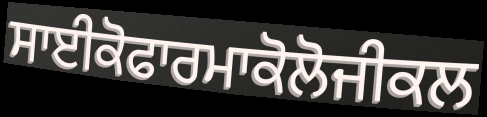
ਸਾਈਕੋਫਾਰਮਾਕੋਲੋਜੀਕਲ